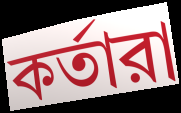
কর্তারা